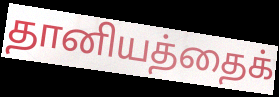
தானியத்தைக்